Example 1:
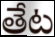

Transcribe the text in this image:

తేట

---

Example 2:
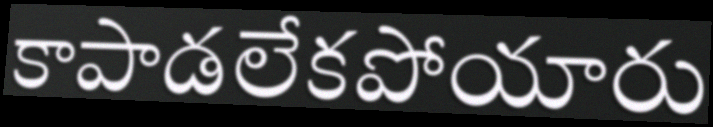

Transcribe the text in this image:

కాపాడలేకపోయారు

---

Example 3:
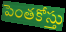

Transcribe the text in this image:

పెంతకోస్తు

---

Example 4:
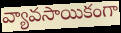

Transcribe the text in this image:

వ్యావసాయికంగా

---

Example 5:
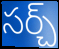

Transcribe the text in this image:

సర్చ్